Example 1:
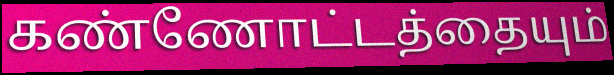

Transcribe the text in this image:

கண்ணோட்டத்தையும்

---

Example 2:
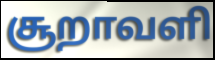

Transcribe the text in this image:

சூறாவளி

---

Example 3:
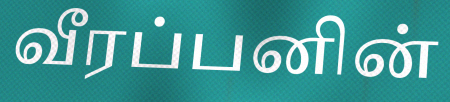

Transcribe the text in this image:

வீரப்பனின்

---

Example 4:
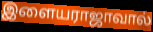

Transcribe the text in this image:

இளையராஜாவால்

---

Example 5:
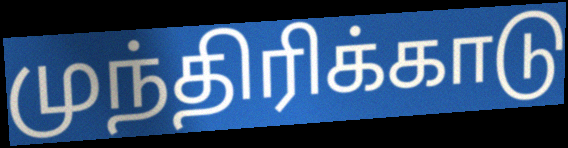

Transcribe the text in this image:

முந்திரிக்காடு